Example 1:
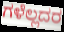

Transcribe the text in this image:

ಗಳೆಲ್ಲದರ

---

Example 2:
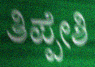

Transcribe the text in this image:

ತಿಪ್ಪೇಶಿ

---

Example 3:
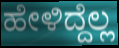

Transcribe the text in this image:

ಹೇಳಿದ್ದೆಲ್ಲ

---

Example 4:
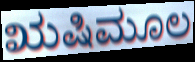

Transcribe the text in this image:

ಋಷಿಮೂಲ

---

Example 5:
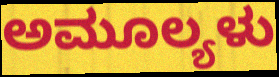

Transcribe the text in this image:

ಅಮೂಲ್ಯಳು